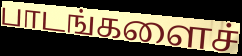
பாடங்களைச்